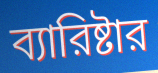
ব্যারিষ্টার